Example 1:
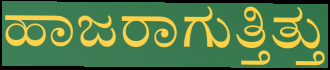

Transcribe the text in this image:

ಹಾಜರಾಗುತ್ತಿತ್ತು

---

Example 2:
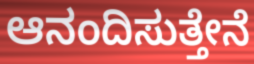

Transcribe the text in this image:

ಆನಂದಿಸುತ್ತೇನೆ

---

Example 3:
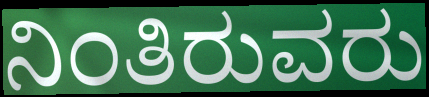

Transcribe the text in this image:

ನಿಂತಿರುವರು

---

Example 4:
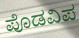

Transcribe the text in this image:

ಪೊಡವಿಪ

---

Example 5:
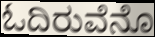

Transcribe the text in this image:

ಓದಿರುವೆನೊ